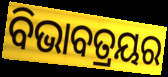
ବିଭାବତ୍ରୟର